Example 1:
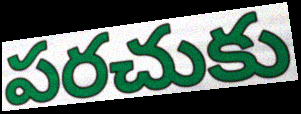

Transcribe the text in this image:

పరచుకు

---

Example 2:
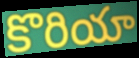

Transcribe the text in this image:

కొరియా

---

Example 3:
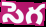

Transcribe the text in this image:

సెగ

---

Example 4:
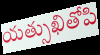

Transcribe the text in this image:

యత్సుఖితోపి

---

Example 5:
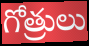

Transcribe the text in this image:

గోత్రులు